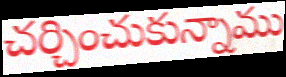
చర్చించుకున్నాము